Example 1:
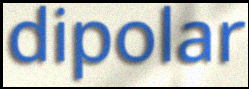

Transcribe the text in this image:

dipolar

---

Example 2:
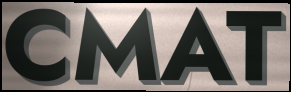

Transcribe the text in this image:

CMAT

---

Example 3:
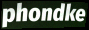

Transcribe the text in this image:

phondke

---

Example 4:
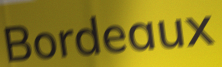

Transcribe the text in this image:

Bordeaux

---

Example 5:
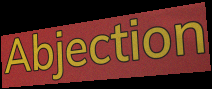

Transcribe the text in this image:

Abjection